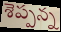
శెప్పన్న